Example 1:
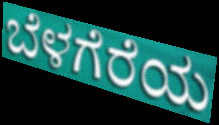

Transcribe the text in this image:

ಬೆಳಗೆರೆಯ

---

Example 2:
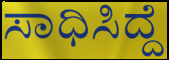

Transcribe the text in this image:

ಸಾಧಿಸಿದ್ದೆ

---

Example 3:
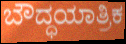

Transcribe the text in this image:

ಬೌದ್ಧಯಾತ್ರಿಕ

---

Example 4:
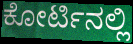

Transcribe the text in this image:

ಕೋರ್ಟಿನಲ್ಲಿ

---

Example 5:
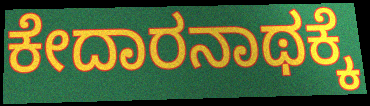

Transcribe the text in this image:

ಕೇದಾರನಾಥಕ್ಕೆ